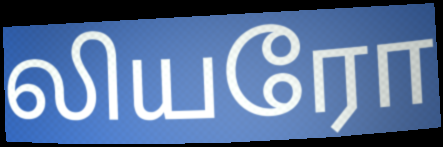
லியரோ